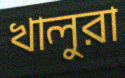
খালুরা